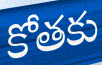
కోతకు